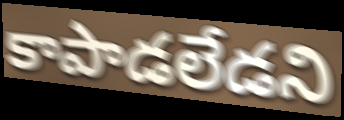
కాపాడలేడని